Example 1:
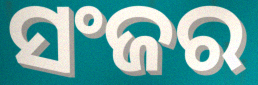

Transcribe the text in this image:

ସଂଜର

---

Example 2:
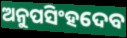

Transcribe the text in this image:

ଅନୁପସିଂହଦେବ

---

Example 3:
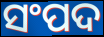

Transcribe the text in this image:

ସଂପଦ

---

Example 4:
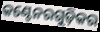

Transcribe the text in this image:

କଣ୍ଟେନରଗୁଡ଼ିକର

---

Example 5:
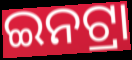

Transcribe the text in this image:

ଇନଟ୍ରା